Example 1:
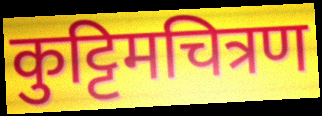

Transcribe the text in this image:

कुट्टिमचित्रण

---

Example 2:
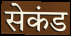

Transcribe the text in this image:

सेकंड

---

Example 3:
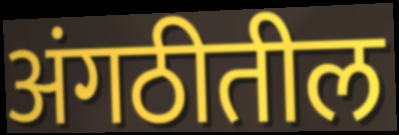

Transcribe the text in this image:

अंगठीतील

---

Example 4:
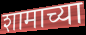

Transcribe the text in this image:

शामाच्या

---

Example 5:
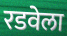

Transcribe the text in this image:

रडवेला